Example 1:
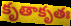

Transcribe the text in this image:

కృతాకృతః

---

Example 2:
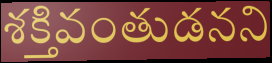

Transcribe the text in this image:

శక్తివంతుడనని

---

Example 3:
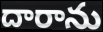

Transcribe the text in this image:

దారాను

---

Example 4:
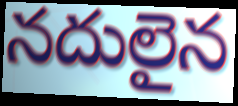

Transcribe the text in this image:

నదులైన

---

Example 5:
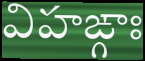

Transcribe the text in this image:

విహఙ్గాః